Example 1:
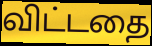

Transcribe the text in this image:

விட்டதை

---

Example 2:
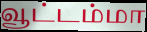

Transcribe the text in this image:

வூட்டம்மா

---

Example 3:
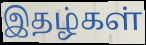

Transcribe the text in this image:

இதழ்கள்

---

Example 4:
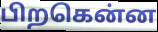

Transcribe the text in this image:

பிறகென்ன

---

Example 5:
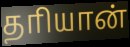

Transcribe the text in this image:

தரியான்